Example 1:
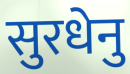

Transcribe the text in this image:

सुरधेनु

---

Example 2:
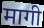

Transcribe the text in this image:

मागी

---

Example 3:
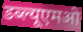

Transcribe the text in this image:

डब्ल्यूएमओ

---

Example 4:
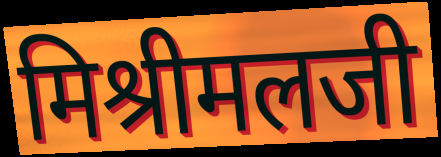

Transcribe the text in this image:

मिश्रीमलजी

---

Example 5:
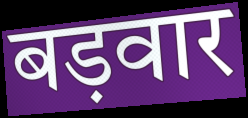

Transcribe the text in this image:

बड़वार